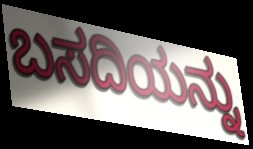
ಬಸದಿಯನ್ನು